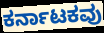
ಕರ್ನಾಟಕವು